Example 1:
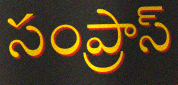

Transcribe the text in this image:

సంప్రాస్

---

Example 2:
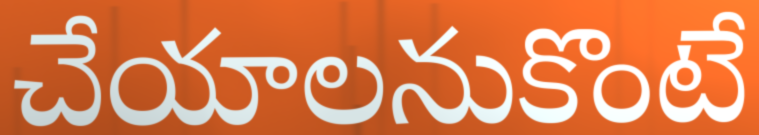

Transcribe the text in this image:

చేయాలనుకొంటే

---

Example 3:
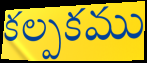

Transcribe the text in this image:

కల్పకము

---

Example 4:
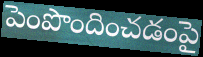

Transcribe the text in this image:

పెంపొందించడంపై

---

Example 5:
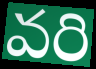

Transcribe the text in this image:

వరి